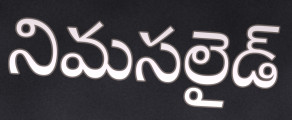
నిమసలైడ్